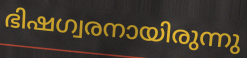
ഭിഷഗ്വരനായിരുന്നു